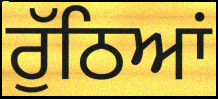
ਰੁੱਠਿਆਂ